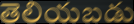
తెలియబడు